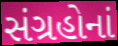
સંગ્રહોનાં